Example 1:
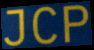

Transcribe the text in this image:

JCP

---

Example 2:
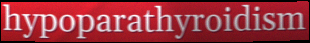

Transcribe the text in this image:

hypoparathyroidism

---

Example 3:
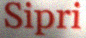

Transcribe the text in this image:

Sipri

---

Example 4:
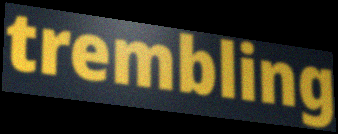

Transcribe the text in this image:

trembling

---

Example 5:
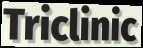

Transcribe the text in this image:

Triclinic